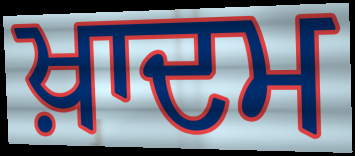
ਖ਼ਾਦਮ